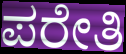
ಪರೇತಿ